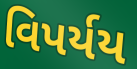
વિપર્યય